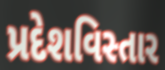
પ્રદેશવિસ્તાર